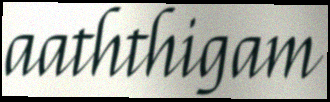
aaththigam